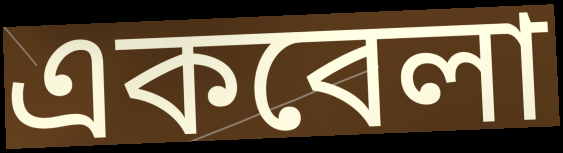
একবেলা